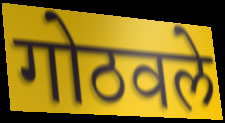
गोठवले